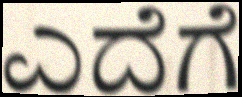
ಎದೆಗೆ